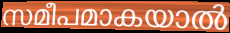
സമീപമാകയാൽ